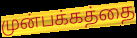
முன்பக்கத்தை